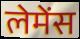
लेमेंस